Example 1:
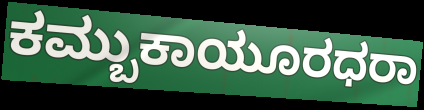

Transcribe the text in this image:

ಕಮ್ಬುಕಾಯೂರಧರಾ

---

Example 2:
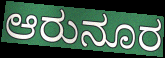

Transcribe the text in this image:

ಆರುನೂರ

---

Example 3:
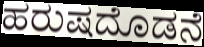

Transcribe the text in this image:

ಹರುಷದೊಡನೆ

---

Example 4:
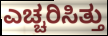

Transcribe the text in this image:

ಎಚ್ಚರಿಸಿತ್ತು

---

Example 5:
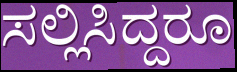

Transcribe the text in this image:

ಸಲ್ಲಿಸಿದ್ದರೂ